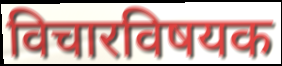
विचारविषयक